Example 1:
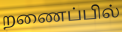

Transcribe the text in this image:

றணைப்பில்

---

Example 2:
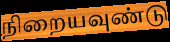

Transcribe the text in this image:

நிறையவுண்டு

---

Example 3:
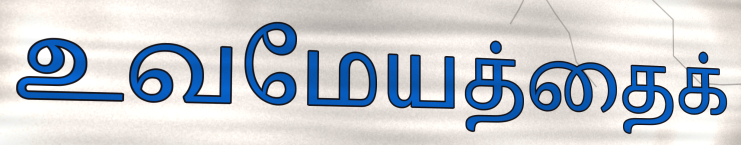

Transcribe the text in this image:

உவமேயத்தைக்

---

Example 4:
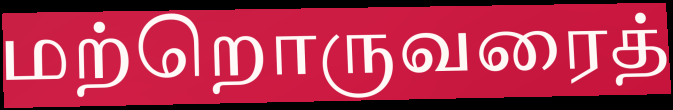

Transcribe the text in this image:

மற்றொருவரைத்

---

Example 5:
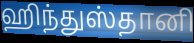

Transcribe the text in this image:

ஹிந்துஸ்தானி